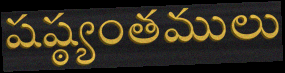
షష్ఠ్యంతములు